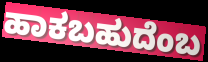
ಹಾಕಬಹುದೆಂಬ